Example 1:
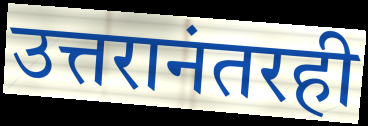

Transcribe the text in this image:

उत्तरानंतरही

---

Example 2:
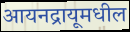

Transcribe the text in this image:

आयनद्रायूमधील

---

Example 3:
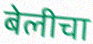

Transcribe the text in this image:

बेलीचा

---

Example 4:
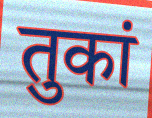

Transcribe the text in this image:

तुकां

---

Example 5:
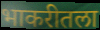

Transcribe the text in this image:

भाकरीतला